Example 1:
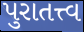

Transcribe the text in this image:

પુરાતત્ત્વ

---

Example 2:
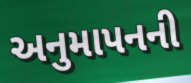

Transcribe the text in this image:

અનુમાપનની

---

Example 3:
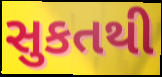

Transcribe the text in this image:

સુકતથી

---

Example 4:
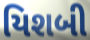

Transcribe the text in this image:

યિશબી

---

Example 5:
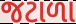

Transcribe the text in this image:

જટાળા